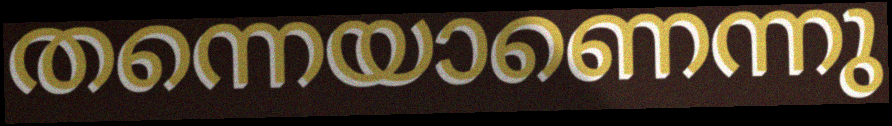
തന്നെയാണെന്നു